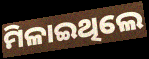
ମିଳାଇଥିଲେ